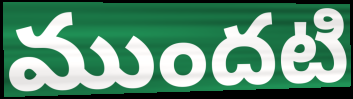
ముందటి